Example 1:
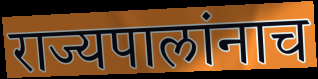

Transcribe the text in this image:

राज्यपालांनाच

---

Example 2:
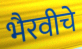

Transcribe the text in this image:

भैरवीचे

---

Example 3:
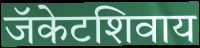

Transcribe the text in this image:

जॅकेटशिवाय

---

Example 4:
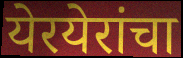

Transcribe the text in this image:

येरयेरांचा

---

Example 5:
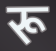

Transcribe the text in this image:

रू